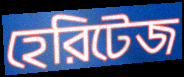
হেরিটেজ